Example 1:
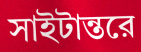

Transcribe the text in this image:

সাইটান্তরে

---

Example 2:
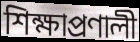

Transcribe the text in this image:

শিক্ষাপ্রণালী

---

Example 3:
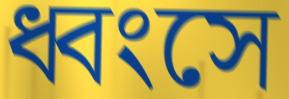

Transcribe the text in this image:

ধ্বংসে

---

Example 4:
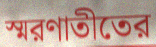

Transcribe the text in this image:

স্মরণাতীতের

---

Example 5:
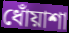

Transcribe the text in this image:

ধোঁয়াশা